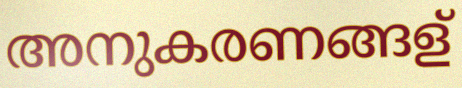
അനുകരണങ്ങള്